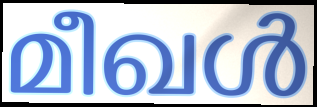
മീഖൾ